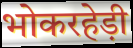
भोकरहेड़ी